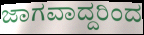
ಜಾಗವಾದ್ದರಿಂದ